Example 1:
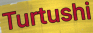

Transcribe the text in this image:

Turtushi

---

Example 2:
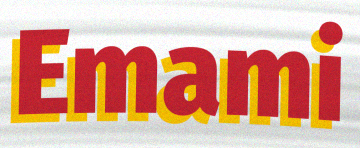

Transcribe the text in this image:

Emami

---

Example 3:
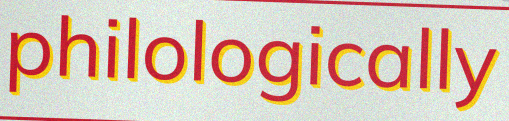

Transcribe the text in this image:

philologically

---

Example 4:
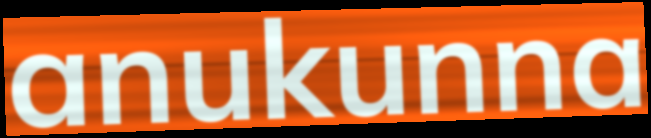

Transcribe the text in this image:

anukunna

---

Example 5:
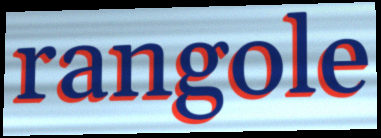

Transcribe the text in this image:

rangole